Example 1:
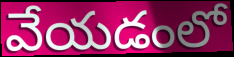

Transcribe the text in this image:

వేయడంలో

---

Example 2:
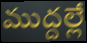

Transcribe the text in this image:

ముద్దల్లే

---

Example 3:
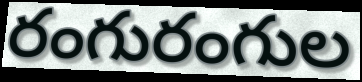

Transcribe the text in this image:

రంగురంగుల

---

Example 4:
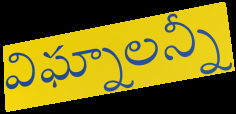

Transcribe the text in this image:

విఘ్నాలన్నీ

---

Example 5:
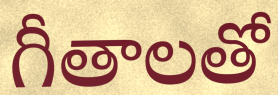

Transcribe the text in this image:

గీతాలతో